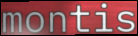
montis